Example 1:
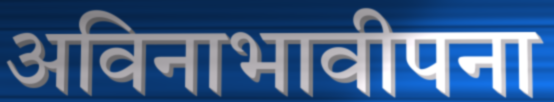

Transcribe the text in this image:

अविनाभावीपना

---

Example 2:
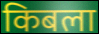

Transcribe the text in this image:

किबला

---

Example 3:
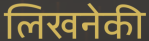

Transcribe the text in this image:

लिखनेकी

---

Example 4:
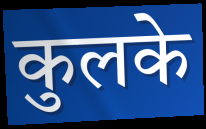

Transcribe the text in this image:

कुलके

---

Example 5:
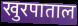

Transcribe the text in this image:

खुरपाताल